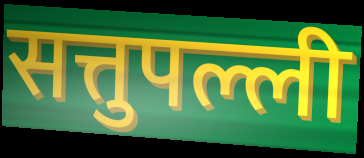
सत्तुपल्ली